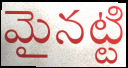
మైనట్టి